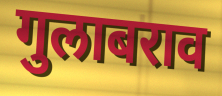
गुलाबराव